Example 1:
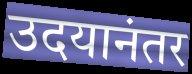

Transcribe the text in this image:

उदयानंतर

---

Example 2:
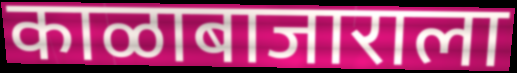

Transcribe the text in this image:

काळाबाजाराला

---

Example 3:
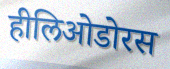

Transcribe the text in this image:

हीलिओडोरस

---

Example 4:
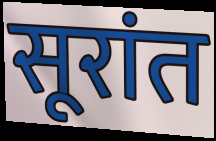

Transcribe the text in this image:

सूरांत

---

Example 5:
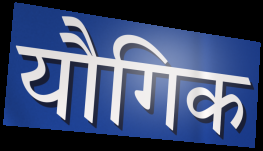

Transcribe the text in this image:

यौगिक